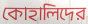
কোহালিদের